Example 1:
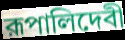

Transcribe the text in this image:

রূপালিদেবী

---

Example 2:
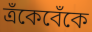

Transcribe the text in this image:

ত্রঁকেবেঁকে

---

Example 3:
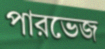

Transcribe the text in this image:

পারভেজ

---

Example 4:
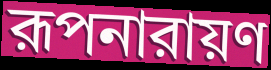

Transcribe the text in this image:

রূপনারায়ণ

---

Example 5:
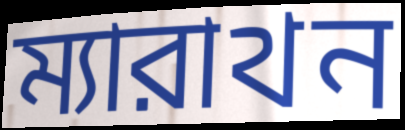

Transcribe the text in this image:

ম্যারাথন